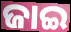
ଜାଇ